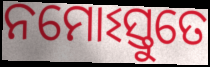
ନମୋଽସ୍ତୁତେ